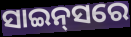
ସାଇନ୍‌ସରେ